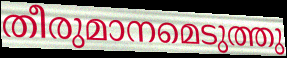
തീരുമാനമെടുത്തു